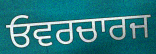
ਓਵਰਚਾਰਜ